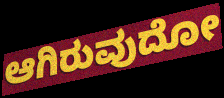
ಆಗಿರುವುದೋ